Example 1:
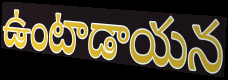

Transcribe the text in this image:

ఉంటాడాయన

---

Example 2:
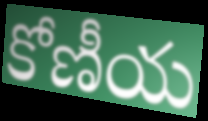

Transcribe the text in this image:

కోణీయ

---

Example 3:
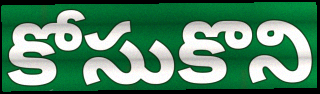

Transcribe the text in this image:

కోసుకొని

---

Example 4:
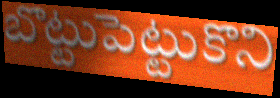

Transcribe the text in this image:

బొట్టుపెట్టుకొని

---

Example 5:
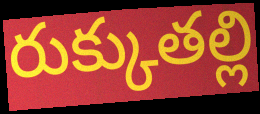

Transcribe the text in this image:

రుక్కుతల్లి